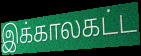
இக்காலகட்ட